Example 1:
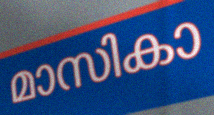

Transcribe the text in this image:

മാസികാ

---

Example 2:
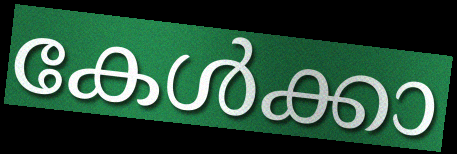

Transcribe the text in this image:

കേൾക്കാ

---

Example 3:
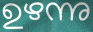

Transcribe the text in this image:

ഉഴന്നു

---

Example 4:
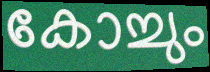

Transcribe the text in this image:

കോച്ചും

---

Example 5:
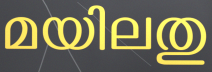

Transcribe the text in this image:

മയിലതു